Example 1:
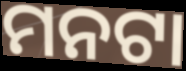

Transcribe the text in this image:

ମନଟା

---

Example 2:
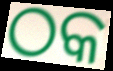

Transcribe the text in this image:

ଠକ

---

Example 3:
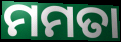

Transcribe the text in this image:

ମମତା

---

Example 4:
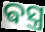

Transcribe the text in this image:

ଵସ୍ତ୍ର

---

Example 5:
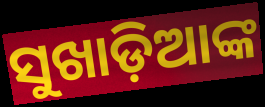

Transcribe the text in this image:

ସୁଖାଡ଼ିଆଙ୍କ